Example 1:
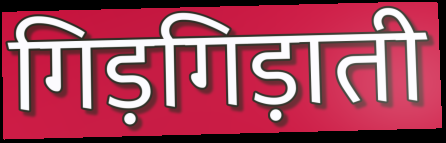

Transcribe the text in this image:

गिड़गिड़ाती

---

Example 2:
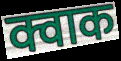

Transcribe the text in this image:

क्वाक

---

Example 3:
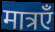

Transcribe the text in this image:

मात्रएँ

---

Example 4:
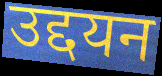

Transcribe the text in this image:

उद्दयन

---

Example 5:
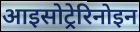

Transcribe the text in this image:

आइसोट्रेरिनोइन